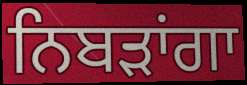
ਨਿਬੜਾਂਗਾ